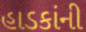
હાડકાંની